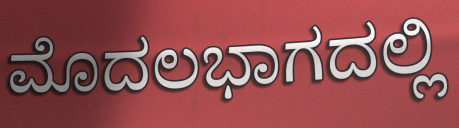
ಮೊದಲಭಾಗದಲ್ಲಿ